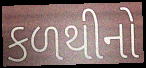
કળથીનો